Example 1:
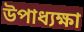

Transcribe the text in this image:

উপাধ্যক্ষা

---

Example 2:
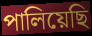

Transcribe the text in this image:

পালিয়েছি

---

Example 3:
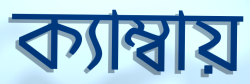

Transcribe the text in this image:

ক্যাম্বায়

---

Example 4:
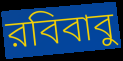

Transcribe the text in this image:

রবিবাবু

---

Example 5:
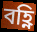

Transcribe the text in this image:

বহ্ণি